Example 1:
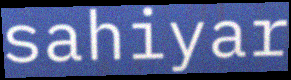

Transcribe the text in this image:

sahiyar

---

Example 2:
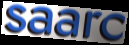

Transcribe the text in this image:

saarc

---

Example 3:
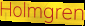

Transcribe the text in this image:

Holmgren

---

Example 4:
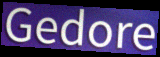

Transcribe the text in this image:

Gedore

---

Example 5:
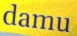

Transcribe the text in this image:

damu